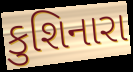
કુશિનારા